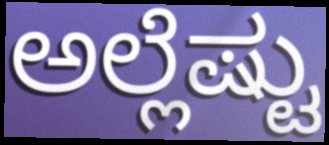
ಅಲ್ಲೆಷ್ಟು